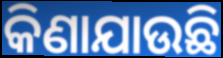
କିଣାଯାଉଛି